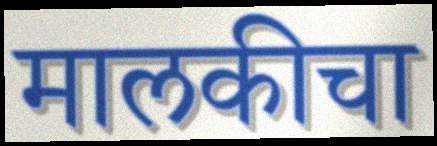
मालकीचा